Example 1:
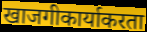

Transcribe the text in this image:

खाजगीकार्याकरता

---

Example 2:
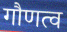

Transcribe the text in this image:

गौणत्व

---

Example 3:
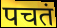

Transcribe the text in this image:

पचतं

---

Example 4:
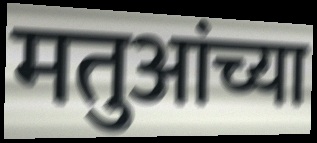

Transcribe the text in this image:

मतुआंच्या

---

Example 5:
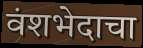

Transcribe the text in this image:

वंशभेदाचा